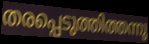
തരപ്പെടുത്തിത്തന്നു